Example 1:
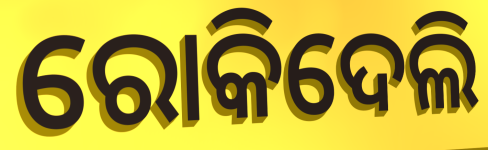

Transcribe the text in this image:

ରୋକିଦେଲି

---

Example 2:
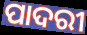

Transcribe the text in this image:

ପାଦରୀ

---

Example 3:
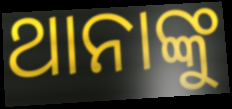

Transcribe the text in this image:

ଥାନାଙ୍କୁ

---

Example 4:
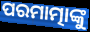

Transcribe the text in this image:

ପରମାତ୍ମାଙ୍କୁ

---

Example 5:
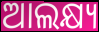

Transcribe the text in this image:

ଆଲକ୍ଷ୍ୟ